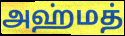
அஹ்மத்